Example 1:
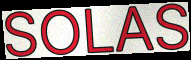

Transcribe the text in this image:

SOLAS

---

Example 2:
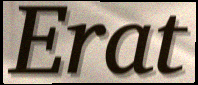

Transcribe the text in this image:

Erat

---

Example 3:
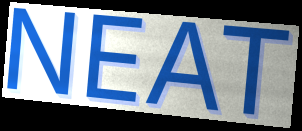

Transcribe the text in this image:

NEAT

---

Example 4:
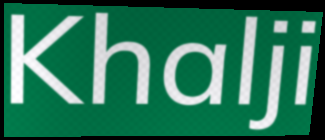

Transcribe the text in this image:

Khalji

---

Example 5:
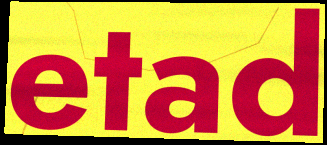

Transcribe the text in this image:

etad